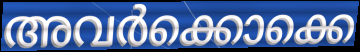
അവർക്കൊക്കെ